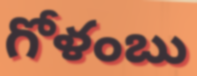
గోళంబు